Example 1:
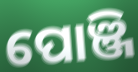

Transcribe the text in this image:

ପୋଞ୍ଜି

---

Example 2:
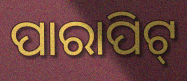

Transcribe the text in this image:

ପାରାପିଟ୍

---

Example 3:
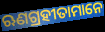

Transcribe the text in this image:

ଋଣଗ୍ରହୀତାମାନେ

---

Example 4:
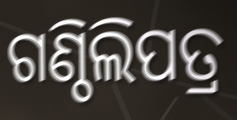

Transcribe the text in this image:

ଗଣ୍ଠିଲିପତ୍ର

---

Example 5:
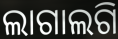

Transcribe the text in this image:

ଲାଗାଲଗି